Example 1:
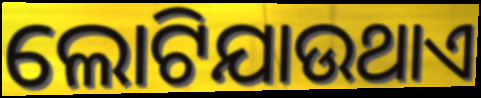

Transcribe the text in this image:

ଲୋଟିଯାଉଥାଏ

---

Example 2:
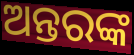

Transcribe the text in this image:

ଅନ୍ତରଙ୍କ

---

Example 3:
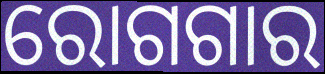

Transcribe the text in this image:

ରୋଗଗାର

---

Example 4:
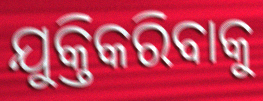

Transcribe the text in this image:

ଯୁକ୍ତିକରିବାକୁ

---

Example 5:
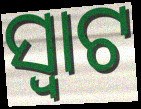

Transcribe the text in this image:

ସ୍ୱାଟ